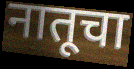
नातूचा